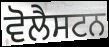
ਵੋਲੈਸਟਨ